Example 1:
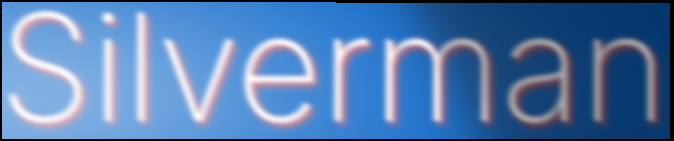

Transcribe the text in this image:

Silverman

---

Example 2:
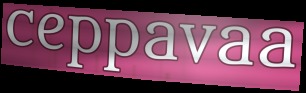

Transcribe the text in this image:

ceppavaa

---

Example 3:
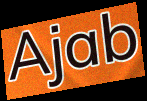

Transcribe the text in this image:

Ajab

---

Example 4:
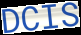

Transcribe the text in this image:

DCIS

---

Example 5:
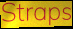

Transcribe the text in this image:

Straps